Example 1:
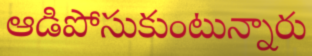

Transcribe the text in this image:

ఆడిపోసుకుంటున్నారు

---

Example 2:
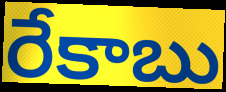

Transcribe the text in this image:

రేకాబు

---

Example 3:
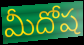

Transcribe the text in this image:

మీదోష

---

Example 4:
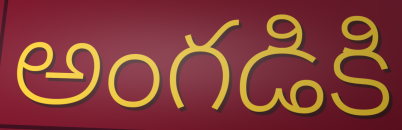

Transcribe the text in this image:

అంగడికి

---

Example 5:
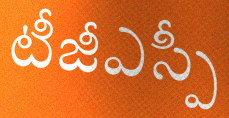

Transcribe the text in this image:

టీజీఎస్పీ